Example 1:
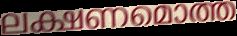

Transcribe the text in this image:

ലക്ഷണമൊത്ത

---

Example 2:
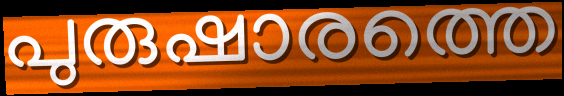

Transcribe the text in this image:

പുരുഷാരത്തെ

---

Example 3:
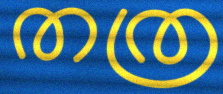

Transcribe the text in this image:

തത്ര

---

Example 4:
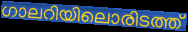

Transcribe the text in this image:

ഗാലറിയിലൊരിടത്ത്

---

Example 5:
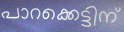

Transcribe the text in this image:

പാറക്കെട്ടിന്